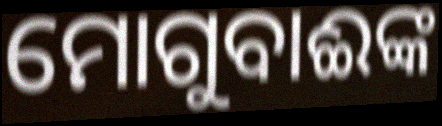
ମୋଗୁବାଈଙ୍କ